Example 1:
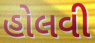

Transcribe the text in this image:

હોલવી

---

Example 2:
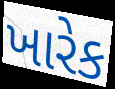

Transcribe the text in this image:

ખારેક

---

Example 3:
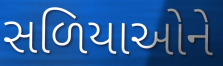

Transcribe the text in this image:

સળિયાઓને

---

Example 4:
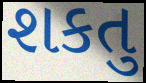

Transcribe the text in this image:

શકતુ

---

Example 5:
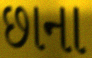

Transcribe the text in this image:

છાના